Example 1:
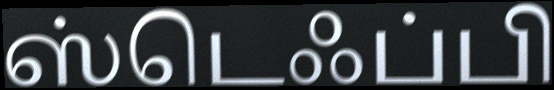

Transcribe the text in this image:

ஸ்டெஃப்பி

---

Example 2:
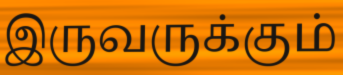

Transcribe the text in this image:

இருவருக்கும்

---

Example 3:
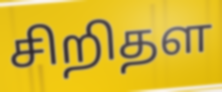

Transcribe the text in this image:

சிறிதள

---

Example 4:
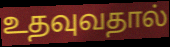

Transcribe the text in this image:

உதவுவதால்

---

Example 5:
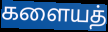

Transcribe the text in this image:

களையத்